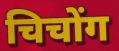
चिचोंग